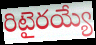
రిటైరయ్యే